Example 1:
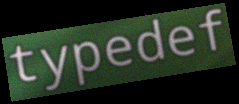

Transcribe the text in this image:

typedef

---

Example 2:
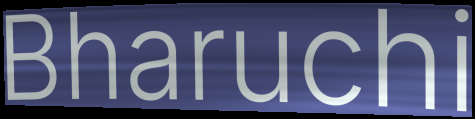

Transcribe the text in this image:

Bharuchi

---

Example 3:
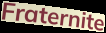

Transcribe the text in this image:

Fraternite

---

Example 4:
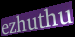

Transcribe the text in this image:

ezhuthu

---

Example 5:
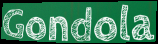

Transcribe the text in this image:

Gondola